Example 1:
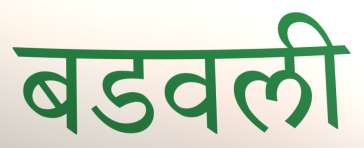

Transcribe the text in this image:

बडवली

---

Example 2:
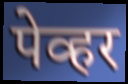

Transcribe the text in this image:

पेव्हर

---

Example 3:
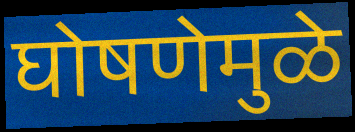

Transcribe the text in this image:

घोषणेमुळे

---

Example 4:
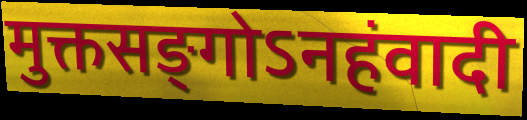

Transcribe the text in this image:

मुक्तसङ्गोऽनहंवादी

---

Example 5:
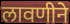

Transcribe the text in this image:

लावणीने